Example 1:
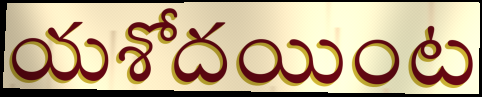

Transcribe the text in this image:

యశోదయింట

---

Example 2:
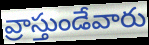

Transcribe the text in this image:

వ్రాస్తుండేవారు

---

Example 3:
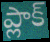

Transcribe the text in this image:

ప్లాక్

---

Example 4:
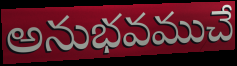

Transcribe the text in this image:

అనుభవముచే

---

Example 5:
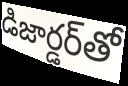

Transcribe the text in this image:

డిజార్డర్‌తో